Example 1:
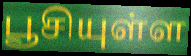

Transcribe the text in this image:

பூசியுள்ள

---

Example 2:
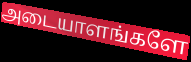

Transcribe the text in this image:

அடையாளங்களே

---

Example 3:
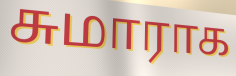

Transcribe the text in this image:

சுமாராக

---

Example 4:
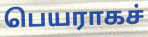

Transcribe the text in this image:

பெயராகச்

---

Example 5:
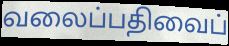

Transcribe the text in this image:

வலைப்பதிவைப்